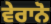
ਵੇਰਾਨੋ